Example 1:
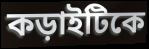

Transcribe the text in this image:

কড়াইটিকে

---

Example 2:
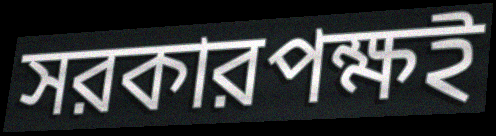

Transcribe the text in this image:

সরকারপক্ষই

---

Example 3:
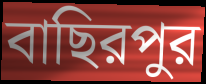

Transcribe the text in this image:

বাছিরপুর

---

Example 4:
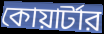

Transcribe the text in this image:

কোয়ার্টার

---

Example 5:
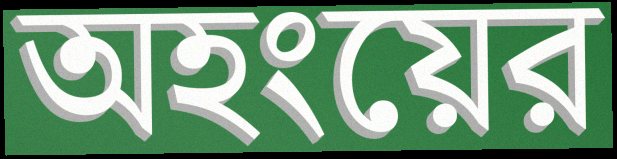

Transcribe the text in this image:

অহংয়ের